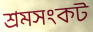
শ্রমসংকট